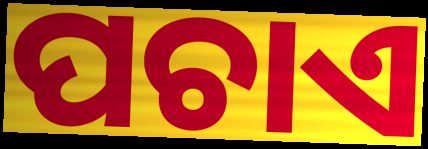
ପଚାଏ